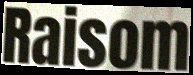
Raisom